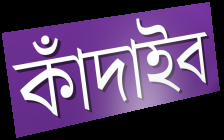
কাঁদাইব